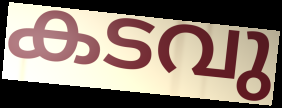
കടവു